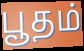
பூதம்